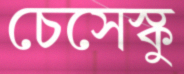
চেসেস্কু